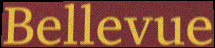
Bellevue